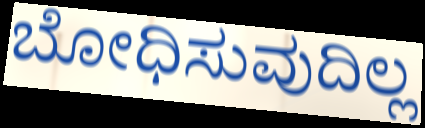
ಬೋಧಿಸುವುದಿಲ್ಲ